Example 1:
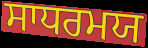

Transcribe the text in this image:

ਸਾਧਰਮਯ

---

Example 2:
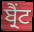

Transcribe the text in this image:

ਬ੍ਰੈਂਟ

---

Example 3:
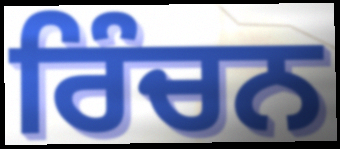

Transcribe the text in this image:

ਰਿੰਚਨ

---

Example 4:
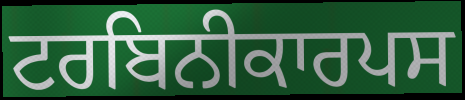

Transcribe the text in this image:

ਟਰਬਿਨੀਕਾਰਪਸ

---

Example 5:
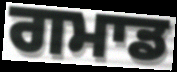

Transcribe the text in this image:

ਗਮਾਡ